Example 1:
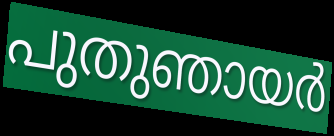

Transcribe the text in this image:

പുതുഞായർ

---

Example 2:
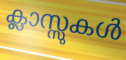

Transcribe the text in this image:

ക്ലാസ്സുകൾ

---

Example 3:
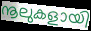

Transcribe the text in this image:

നൂലുകളായി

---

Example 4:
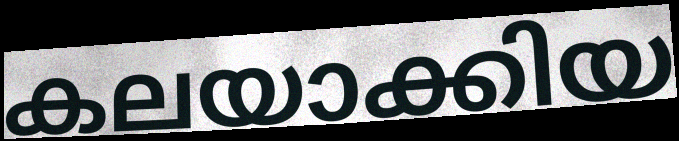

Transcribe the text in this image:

കലയാക്കിയ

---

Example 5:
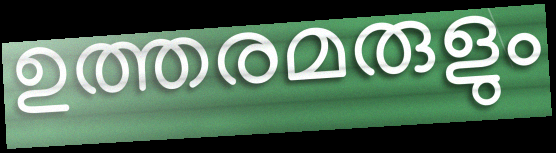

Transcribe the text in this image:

ഉത്തരമരുളും